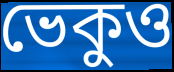
ভেকুও